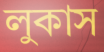
লুকাস